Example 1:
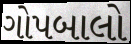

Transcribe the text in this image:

ગોપબાલો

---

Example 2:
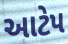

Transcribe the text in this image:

આટેપ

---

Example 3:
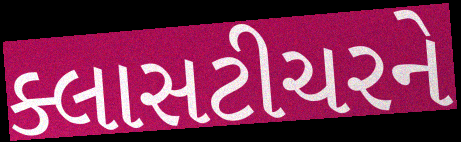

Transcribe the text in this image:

ક્લાસટીચરને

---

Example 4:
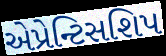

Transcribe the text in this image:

એપ્રેન્ટિસશિપ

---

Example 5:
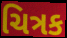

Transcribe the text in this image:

ચિત્રક